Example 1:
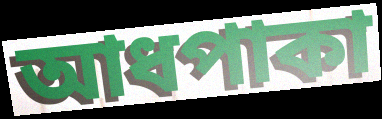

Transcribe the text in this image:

আধপাকা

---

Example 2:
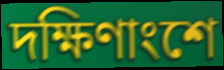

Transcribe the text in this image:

দক্ষিণাংশে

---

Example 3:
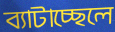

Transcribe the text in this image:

ব্যাটাচ্ছেলে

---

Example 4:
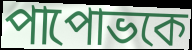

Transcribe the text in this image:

পাপোভকে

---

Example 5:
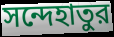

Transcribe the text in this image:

সন্দেহাতুর